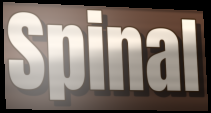
Spinal